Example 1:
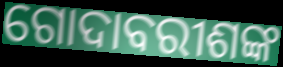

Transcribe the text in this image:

ଗୋଦାବରୀଶଙ୍କ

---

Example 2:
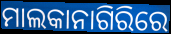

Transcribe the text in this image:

ମାଲକାନାଗିରିରେ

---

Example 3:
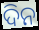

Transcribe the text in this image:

ଦିନ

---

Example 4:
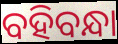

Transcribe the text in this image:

ବହିବନ୍ଧା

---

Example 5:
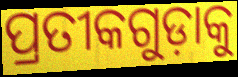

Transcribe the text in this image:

ପ୍ରତୀକଗୁଡ଼ାକୁ